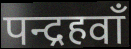
पन्द्रहवाँ